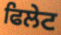
ਫਿਲੇਟ